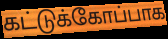
கட்டுக்கோப்பாக